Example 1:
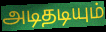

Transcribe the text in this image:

அடிதடியும்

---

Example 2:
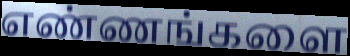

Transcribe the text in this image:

எண்ணங்களை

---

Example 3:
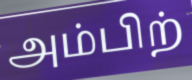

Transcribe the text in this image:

அம்பிற்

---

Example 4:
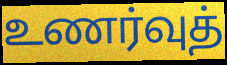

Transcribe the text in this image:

உணர்வுத்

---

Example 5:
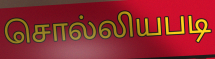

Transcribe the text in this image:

சொல்லியபடி